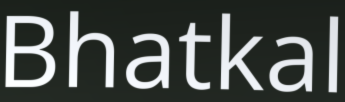
Bhatkal